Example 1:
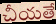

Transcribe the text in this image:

చీయతే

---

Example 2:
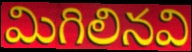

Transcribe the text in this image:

మిగిలినవి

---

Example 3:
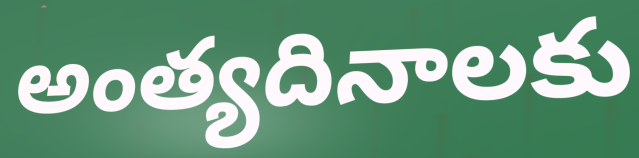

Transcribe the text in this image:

అంత్యదినాలకు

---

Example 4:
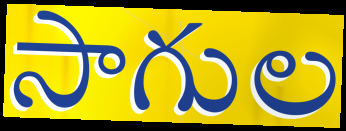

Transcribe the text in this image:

సాగుల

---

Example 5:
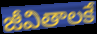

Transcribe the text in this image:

జీవితాలకే